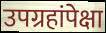
उपग्रहांपेक्षा